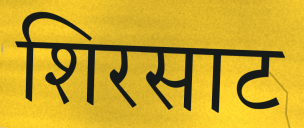
शिरसाट